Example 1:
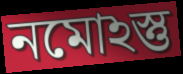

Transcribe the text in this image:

নমোঽস্তু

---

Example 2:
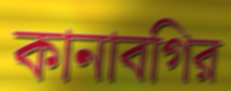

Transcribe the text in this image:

কানাবগির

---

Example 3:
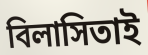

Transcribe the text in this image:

বিলাসিতাই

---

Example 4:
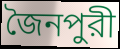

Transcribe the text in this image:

জৈনপুরী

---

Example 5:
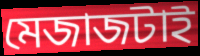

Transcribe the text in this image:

মেজাজটাই